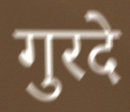
गुरदे